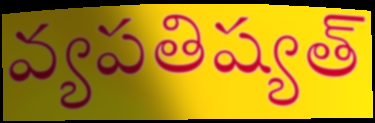
వ్యపతిష్యత్